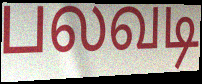
பலவடி